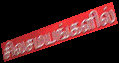
சிலசமயங்களில்